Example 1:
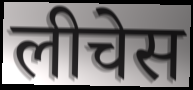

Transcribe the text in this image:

लीचेस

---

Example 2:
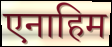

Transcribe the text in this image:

एनाहिम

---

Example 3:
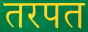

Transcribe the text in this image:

तरपत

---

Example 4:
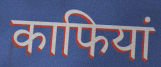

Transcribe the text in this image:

काफियां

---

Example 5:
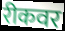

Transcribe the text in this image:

रीकवर